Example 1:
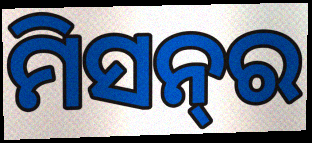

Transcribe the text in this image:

ମିସନ୍‌ର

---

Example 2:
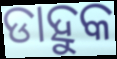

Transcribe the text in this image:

ଡାହୁକ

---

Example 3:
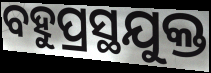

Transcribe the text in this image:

ବହୁପ୍ରସ୍ଥଯୁକ୍ତ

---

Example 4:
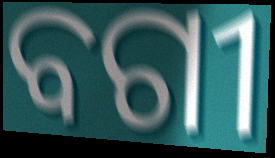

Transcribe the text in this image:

ବଗୀ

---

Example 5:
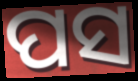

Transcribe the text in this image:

ପସ